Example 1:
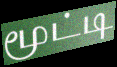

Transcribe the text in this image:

மூட்டி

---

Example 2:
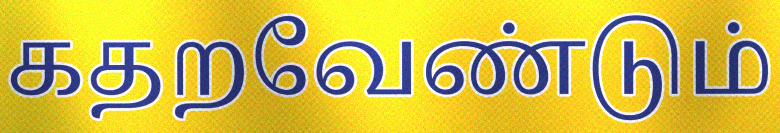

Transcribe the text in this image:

கதறவேண்டும்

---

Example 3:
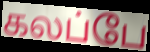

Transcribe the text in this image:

கலப்பே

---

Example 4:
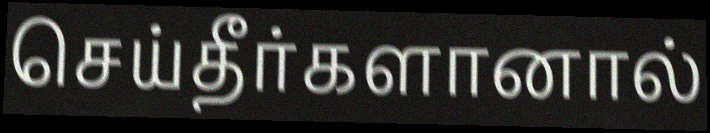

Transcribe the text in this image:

செய்தீர்களானால்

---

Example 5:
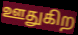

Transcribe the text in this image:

ஊதுகிற